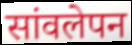
सांवलेपन